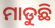
ମାଡୁଛି